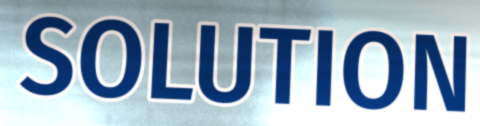
SOLUTION